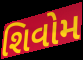
શિવોમ